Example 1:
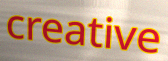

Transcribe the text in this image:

creative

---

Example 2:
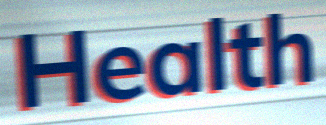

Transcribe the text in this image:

Health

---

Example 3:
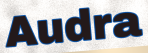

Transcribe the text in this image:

Audra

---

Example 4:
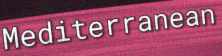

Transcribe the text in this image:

Mediterranean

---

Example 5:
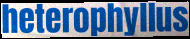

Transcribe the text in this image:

heterophyllus